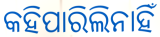
କହିପାରିଲିନାହିଁ